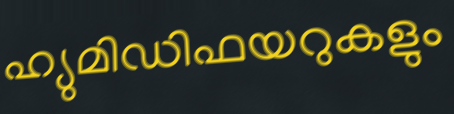
ഹ്യുമിഡിഫയറുകളും